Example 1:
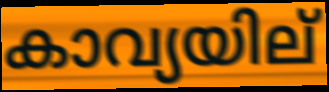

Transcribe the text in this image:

കാവ്യയില്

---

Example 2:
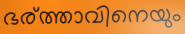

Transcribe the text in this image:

ഭര്ത്താവിനെയും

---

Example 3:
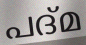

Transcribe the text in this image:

പദ്മ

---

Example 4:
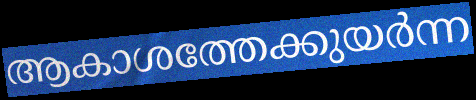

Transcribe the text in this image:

ആകാശത്തേക്കുയർന്ന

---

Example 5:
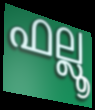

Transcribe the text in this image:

ഫല്ലൂ